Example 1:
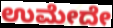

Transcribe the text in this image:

ಉಮೇದೇ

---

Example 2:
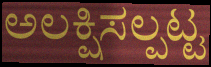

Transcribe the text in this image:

ಅಲಕ್ಷಿಸಲ್ಪಟ್ಟ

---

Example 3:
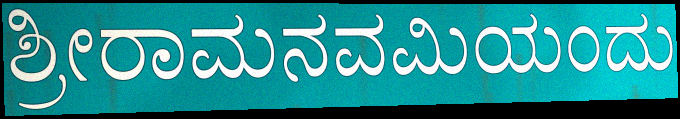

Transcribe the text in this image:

ಶ್ರೀರಾಮನವಮಿಯಂದು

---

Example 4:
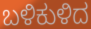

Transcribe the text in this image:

ಬಳಿಕುಳಿದ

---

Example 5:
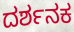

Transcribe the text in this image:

ದರ್ಶನಕ